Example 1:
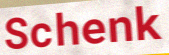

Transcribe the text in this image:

Schenk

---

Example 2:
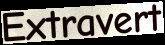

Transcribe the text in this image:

Extravert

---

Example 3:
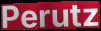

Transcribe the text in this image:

Perutz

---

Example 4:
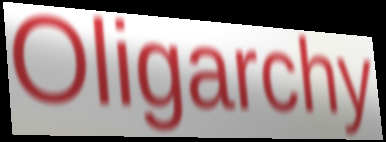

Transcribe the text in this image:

Oligarchy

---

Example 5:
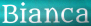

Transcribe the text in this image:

Bianca